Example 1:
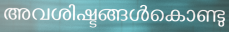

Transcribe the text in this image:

അവശിഷ്ടങ്ങൾകൊണ്ടു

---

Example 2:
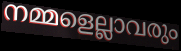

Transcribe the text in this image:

നമ്മളെല്ലാവരും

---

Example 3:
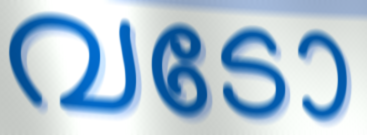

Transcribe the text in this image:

വടോ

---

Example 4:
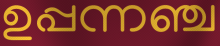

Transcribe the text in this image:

ഉപ്പന്നഞ്ച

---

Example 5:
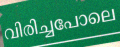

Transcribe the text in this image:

വിരിച്ചപോലെ